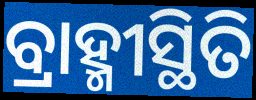
ବ୍ରାହ୍ମୀସ୍ଥିତି